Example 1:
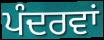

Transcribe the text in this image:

ਪੰਦਰਵਾਂ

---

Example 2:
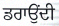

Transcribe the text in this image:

ਡਰਾਉਂਦੀ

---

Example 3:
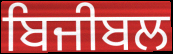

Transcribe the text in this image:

ਬਿਜੀਬਲ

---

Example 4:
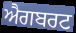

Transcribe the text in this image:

ਐਗਬਰਟ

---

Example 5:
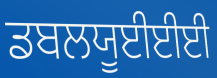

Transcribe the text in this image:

ਡਬਲਯੂਈਈਈ